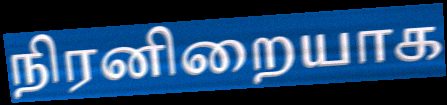
நிரனிறையாக